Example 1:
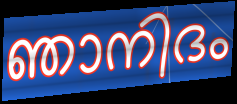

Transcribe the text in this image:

ഞാനിദം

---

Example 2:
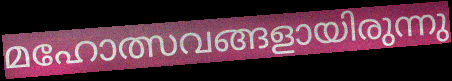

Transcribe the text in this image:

മഹോത്സവങ്ങളായിരുന്നു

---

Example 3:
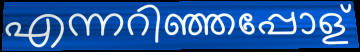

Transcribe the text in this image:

എന്നറിഞ്ഞപ്പോള്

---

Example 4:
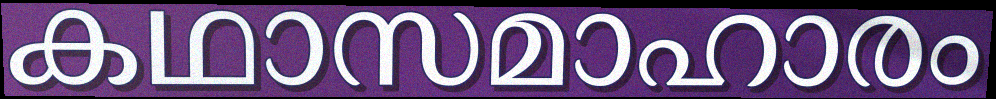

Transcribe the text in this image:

കഥാസമാഹാരം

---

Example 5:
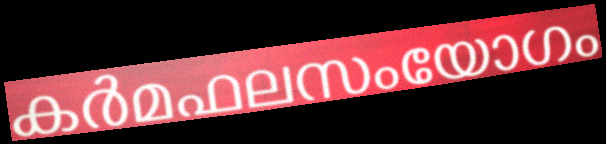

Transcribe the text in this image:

കർമഫലസംയോഗം